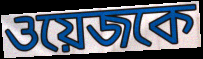
ওয়েজকে